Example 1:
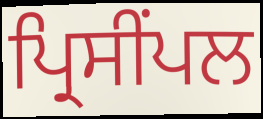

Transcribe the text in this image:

ਪ੍ਰਿਸੀਂਪਲ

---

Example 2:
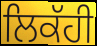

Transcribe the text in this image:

ਲਿਕੱਹੀ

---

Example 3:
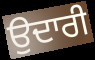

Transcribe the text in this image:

ਉਦਾਰੀ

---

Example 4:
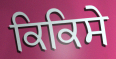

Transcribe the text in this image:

ਕਿਕਿਸੇ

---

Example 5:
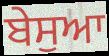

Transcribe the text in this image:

ਬੇਸੁਆ